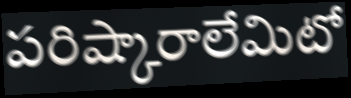
పరిష్కారాలేమిటో